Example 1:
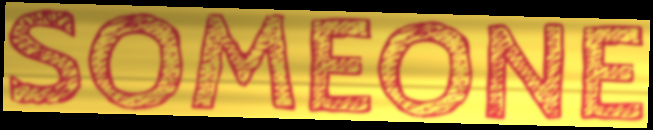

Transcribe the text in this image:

SOMEONE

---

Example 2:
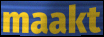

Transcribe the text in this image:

maakt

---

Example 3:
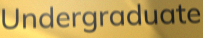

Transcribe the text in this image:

Undergraduate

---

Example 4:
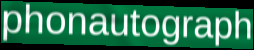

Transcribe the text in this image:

phonautograph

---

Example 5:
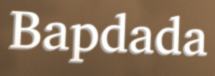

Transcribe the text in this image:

Bapdada